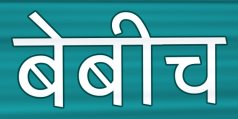
बेबीच